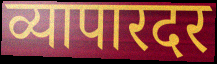
व्यापारदर